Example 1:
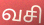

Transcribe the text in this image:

வசி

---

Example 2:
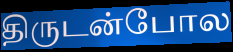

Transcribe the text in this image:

திருடன்போல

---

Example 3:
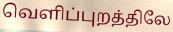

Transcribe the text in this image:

வெளிப்புறத்திலே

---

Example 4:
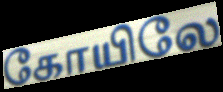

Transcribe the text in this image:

கோயிலே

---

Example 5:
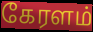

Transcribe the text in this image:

கேரளம்